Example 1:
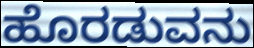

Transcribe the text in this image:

ಹೊರಡುವನು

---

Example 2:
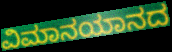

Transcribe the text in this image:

ವಿಮಾನಯಾನದ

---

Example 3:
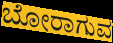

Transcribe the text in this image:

ಬೋರಾಗುವ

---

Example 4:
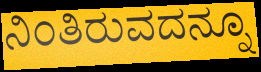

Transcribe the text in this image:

ನಿಂತಿರುವದನ್ನೂ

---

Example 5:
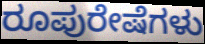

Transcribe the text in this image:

ರೂಪುರೇಷೆಗಳು